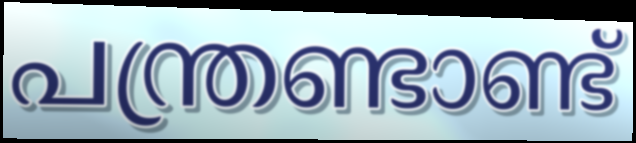
പന്ത്രണ്ടാണ്ട്